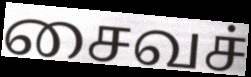
சைவச்